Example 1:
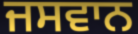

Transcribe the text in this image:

ਜਸਵਾਨ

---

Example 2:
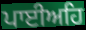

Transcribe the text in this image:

ਪਾਈਅਹਿ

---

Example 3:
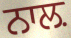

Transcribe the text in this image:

ਨਾਲ਼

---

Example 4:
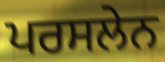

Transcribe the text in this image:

ਪਰਸਲੇਨ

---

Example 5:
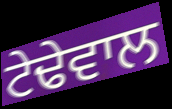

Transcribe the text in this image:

ਟੇਢੇਵਾਲ